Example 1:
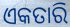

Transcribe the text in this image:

ଏକତାରି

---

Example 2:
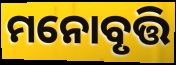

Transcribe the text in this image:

ମନୋବୃତ୍ତି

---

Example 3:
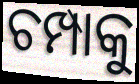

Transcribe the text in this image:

ଚମ୍ପାକୁ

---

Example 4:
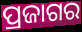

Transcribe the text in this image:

ପ୍ରଜାଗର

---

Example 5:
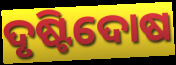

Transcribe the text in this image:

ଦୃଷ୍ଟିଦୋଷ